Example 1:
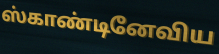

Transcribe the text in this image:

ஸ்காண்டினேவிய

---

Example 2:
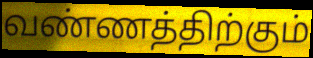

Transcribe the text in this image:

வண்ணத்திற்கும்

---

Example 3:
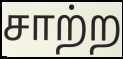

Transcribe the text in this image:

சாற்ற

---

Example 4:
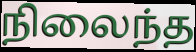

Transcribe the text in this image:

நிலைந்த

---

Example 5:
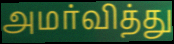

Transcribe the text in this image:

அமர்வித்து